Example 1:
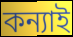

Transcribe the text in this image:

কন্যাই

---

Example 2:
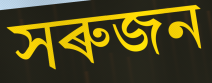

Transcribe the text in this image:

সৰুজন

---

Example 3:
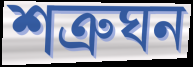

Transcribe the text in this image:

শত্ৰুঘন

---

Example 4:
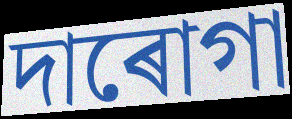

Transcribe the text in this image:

দাৰোগা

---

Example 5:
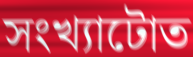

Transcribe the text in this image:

সংখ্যাটোত